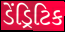
ડેંડ્રિટિક